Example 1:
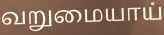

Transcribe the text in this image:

வறுமையாய்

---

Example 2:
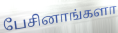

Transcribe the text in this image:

பேசினாங்களா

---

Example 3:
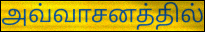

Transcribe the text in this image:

அவ்வாசனத்தில்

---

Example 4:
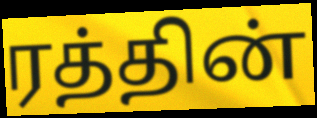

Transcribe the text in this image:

ரத்தின்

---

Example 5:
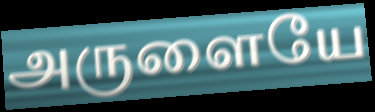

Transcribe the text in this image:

அருளையே